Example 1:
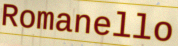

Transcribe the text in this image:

Romanello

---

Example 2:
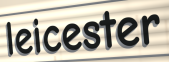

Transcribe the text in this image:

leicester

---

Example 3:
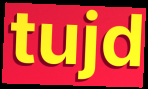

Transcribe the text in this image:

tujd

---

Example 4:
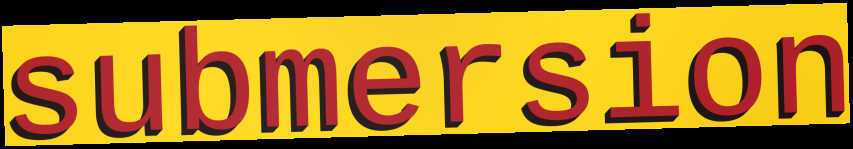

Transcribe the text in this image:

submersion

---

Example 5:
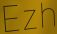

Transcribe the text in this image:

Ezh